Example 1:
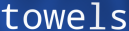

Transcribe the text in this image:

towels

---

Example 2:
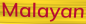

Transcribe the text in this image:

Malayan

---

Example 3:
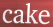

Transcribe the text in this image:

cake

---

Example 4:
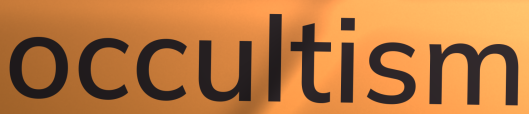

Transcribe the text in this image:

occultism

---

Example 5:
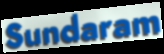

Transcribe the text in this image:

Sundaram